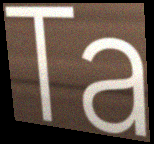
Ta